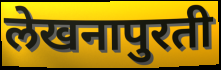
लेखनापुरती